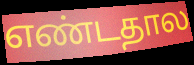
எண்டதால